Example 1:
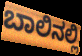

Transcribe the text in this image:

ಬಾಲಿನಲ್ಲಿ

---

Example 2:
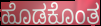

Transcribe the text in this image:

ಹೊಡಕೊಂತ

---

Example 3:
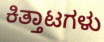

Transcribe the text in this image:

ಕಿತ್ತಾಟಗಳು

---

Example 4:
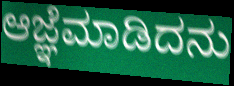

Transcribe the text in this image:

ಆಜ್ಞೆಮಾಡಿದನು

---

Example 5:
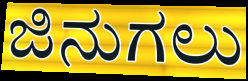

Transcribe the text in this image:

ಜಿನುಗಲು